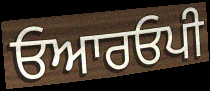
ਓਆਰਓਪੀ